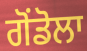
ਗੋਂਡੋਲਾ